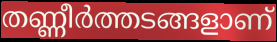
തണ്ണീർത്തടങ്ങളാണ്